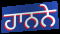
ਹਾਨਨੇ